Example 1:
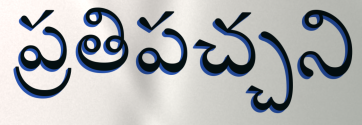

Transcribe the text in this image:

ప్రతిపచ్చని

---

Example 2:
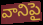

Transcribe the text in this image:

వానిపై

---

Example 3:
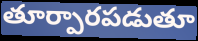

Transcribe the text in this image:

తూర్పారపడుతూ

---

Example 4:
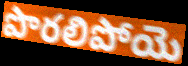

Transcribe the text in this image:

పొరలిపోయె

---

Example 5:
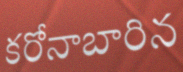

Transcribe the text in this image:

కరోనాబారిన